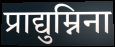
प्राद्युम्निना